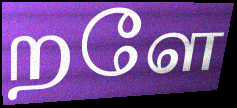
றளே